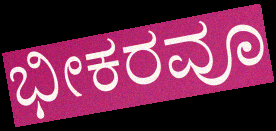
ಭೀಕರವೂ